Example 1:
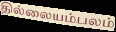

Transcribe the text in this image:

தில்லையம்பலம்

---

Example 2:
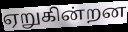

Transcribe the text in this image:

ஏறுகின்றன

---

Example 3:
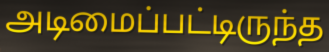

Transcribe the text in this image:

அடிமைப்பட்டிருந்த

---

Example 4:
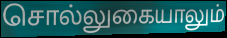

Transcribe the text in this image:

சொல்லுகையாலும்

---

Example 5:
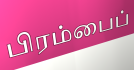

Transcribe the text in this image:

பிரம்பைப்